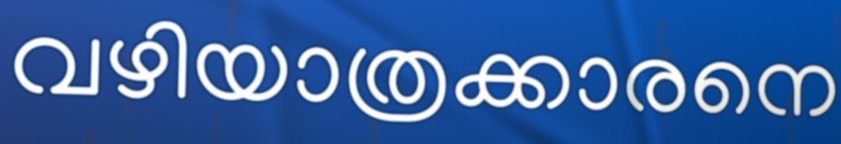
വഴിയാത്രക്കാരനെ